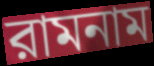
রামনাম